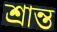
শ্রান্ত